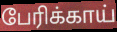
பேரிக்காய்